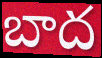
బాద